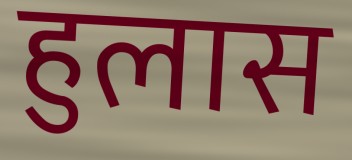
हुलास